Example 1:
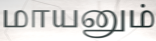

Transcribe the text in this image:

மாயனும்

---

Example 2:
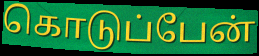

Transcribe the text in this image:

கொடுப்பேன்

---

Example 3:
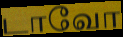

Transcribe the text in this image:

டாவோ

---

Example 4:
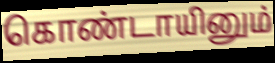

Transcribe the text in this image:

கொண்டாயினும்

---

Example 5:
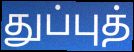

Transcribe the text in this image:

துப்புத்